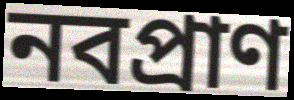
নবপ্রাণ